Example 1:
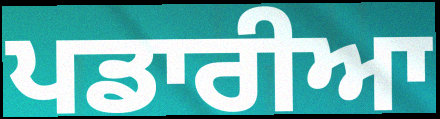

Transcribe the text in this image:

ਪਡਾਰੀਆ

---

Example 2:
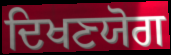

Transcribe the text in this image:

ਦਿਖਣਯੋਗ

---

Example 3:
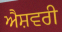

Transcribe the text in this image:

ਐਸ਼ਵਰੀ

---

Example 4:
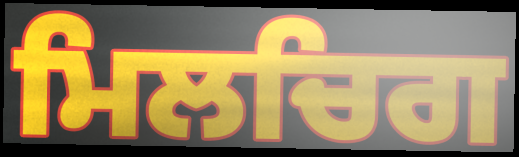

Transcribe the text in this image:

ਮਿਲਚਿਗ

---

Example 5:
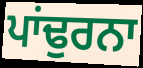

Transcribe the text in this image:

ਪਾਂਢੁਰਨਾ